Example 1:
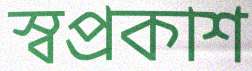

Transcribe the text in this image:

স্বপ্ৰকাশ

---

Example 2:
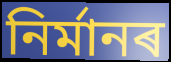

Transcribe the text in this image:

নিৰ্মানৰ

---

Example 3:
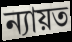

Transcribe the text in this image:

ন্যায়ত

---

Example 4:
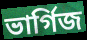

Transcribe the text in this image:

ভাৰ্গিজ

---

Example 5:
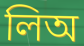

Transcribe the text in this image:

লিঅ